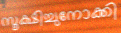
സൂക്ഷിച്ചുനോക്കി